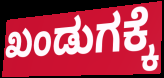
ಖಂಡುಗಕ್ಕೆ